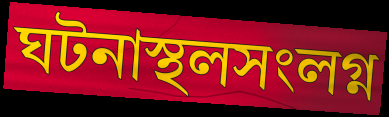
ঘটনাস্থলসংলগ্ন